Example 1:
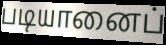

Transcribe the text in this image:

படியானைப்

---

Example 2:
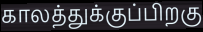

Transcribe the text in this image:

காலத்துக்குப்பிறகு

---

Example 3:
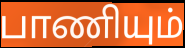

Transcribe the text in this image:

பாணியும்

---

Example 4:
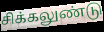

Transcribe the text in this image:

சிக்கலுண்டு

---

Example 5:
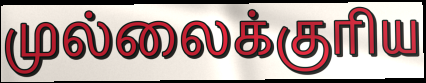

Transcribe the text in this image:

முல்லைக்குரிய